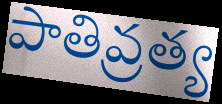
పాతివ్రత్య